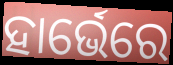
ହାର୍ଭେରେ